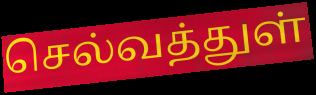
செல்வத்துள்